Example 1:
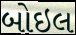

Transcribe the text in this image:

બોઇલ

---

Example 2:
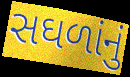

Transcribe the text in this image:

સઘળાંનું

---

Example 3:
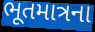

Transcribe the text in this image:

ભૂતમાત્રના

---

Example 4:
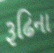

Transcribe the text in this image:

રૂઢિના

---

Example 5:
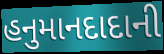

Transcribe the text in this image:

હનુમાનદાદાની